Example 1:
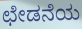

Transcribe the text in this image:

ಛೇಡನೆಯ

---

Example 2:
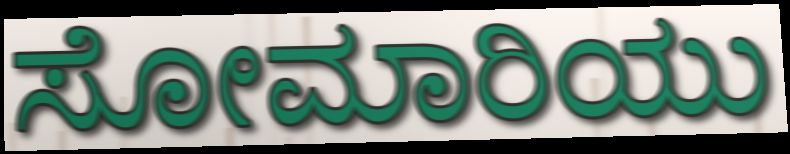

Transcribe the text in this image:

ಸೋಮಾರಿಯು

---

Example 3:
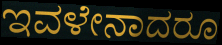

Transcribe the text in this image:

ಇವಳೇನಾದರೂ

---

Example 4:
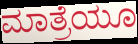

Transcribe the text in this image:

ಮಾತ್ರೆಯೂ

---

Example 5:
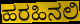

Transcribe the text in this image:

ಹರಹಿನಲಿ